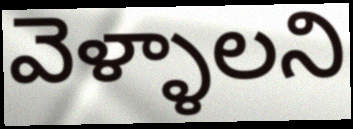
వెళ్ళాలని